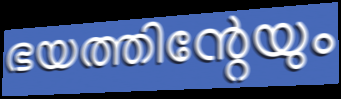
ഭയത്തിന്റേയും